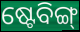
ଷ୍ଟେବିଙ୍ଗ୍